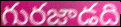
గురజాడది